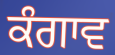
ਕੰਗਾਵ